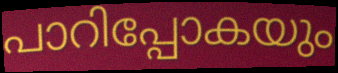
പാറിപ്പോകയും